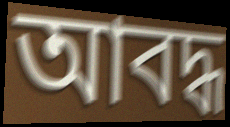
আবদ্ধ